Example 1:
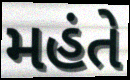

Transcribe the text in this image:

મહંતે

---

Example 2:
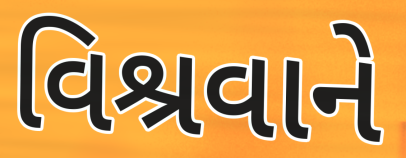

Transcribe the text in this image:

વિશ્રવાને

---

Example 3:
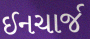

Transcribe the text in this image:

ઈનચાર્જ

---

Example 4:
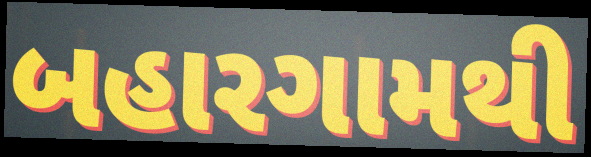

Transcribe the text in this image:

બહારગામથી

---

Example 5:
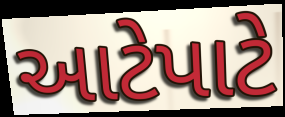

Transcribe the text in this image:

આટેપાટે